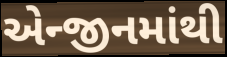
એન્જીનમાંથી